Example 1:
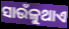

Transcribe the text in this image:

ସାଉଁଳୁଥାଏ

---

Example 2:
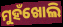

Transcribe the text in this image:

ମୁହଁଖୋଲି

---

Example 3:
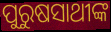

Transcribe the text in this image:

ପୁରୁଷସାଥୀଙ୍କ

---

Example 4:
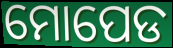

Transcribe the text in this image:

ମୋପେଡ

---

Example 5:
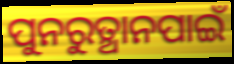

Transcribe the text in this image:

ପୁନରୁତ୍ଥାନପାଇଁ